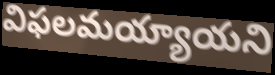
విఫలమయ్యాయని